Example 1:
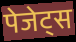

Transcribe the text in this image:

पेजेट्स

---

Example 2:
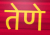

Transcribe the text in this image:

तेणे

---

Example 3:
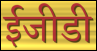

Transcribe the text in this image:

ईजीडी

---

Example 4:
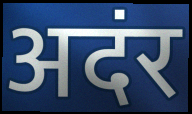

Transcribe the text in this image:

अदंर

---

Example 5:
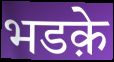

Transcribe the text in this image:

भडक़े